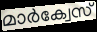
മാർക്വേസ്